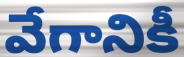
వేగానికీ